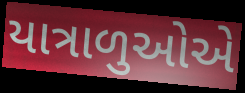
યાત્રાળુઓએ